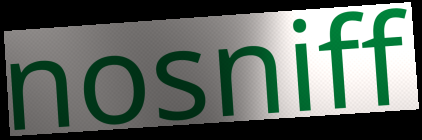
nosniff